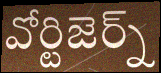
వోర్టిజెర్న్